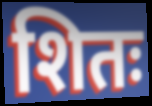
शितः